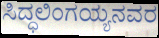
ಸಿದ್ಧಲಿಂಗಯ್ಯನವರ